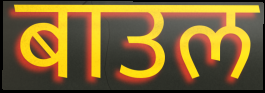
बाउल